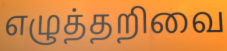
எழுத்தறிவை